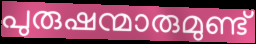
പുരുഷന്മാരുമുണ്ട്